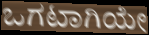
ಒಗಟಾಗಿಯೇ